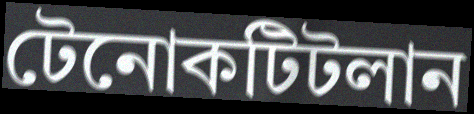
টেনোকটিটলান